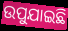
ଉପୁଯାଇଛି